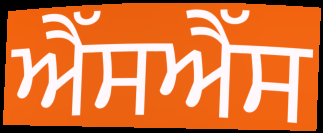
ਐੱਸਐੱਸ